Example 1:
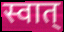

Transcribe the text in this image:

स्वात्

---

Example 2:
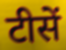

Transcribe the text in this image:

टीसें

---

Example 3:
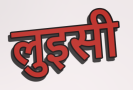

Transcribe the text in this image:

लुइसी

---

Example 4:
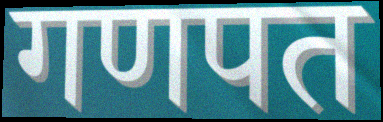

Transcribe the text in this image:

गणपत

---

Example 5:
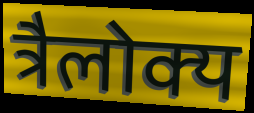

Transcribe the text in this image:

त्रैलोक्य